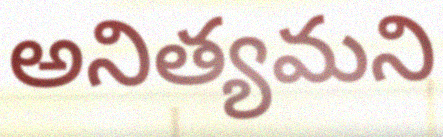
అనిత్యమని